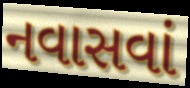
નવાસવાં